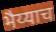
भैय्याच